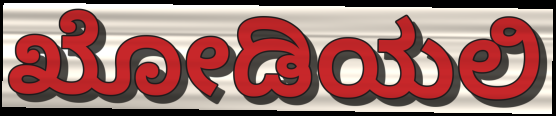
ಖೋಡಿಯಲಿ